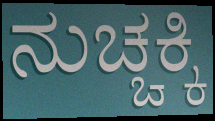
ನುಚ್ಚಕ್ಕಿ